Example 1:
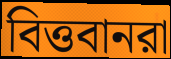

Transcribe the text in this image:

বিত্তবানরা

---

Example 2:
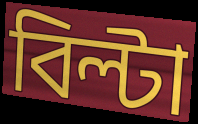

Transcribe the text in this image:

বিল্টা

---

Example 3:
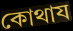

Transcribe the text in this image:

কোথায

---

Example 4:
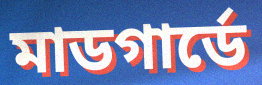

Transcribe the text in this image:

মাডগার্ডে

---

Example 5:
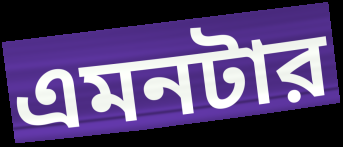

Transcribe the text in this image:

এমনটার